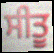
ਸੀਤੂ